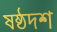
ষষ্ঠদশ